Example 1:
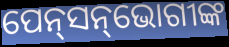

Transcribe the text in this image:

ପେନ୍‌ସନ୍‌ଭୋଗୀଙ୍କ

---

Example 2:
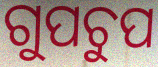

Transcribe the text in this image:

ଗୁପଚୁପ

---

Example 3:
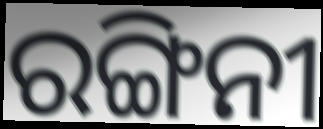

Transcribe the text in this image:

ରଙ୍ଗିନୀ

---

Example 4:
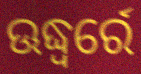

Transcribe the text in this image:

ଊଦ୍ଧ୍ୱର୍ରେ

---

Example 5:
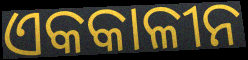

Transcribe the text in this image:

ଏକକାଳୀନ